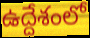
ఉద్దేశంలో